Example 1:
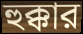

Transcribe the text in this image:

হুক্কার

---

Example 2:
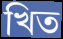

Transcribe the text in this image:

খিত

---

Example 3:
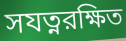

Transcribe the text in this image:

সযত্নরক্ষিত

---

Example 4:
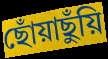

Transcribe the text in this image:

ছোঁয়াছুঁয়ি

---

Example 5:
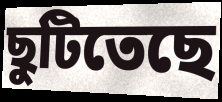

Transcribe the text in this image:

ছুটিতেছে